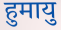
हुमायु